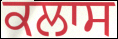
ਕਲਾਸ